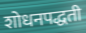
शोधनपद्धती